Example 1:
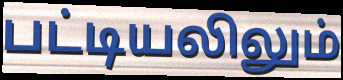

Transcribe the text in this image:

பட்டியலிலும்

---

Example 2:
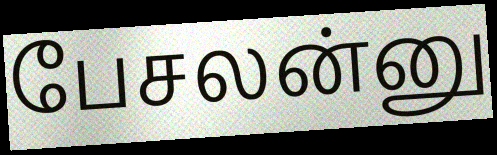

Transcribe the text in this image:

பேசலன்னு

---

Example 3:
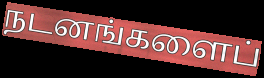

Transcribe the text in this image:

நடனங்களைப்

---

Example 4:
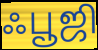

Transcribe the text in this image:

ஃபூஜி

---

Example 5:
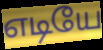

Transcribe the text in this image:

எடியே